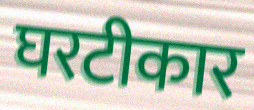
घरटीकार